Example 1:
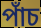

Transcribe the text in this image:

পাঁচ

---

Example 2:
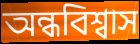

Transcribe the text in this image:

অন্ধবিশ্বাস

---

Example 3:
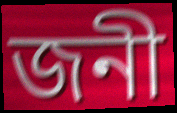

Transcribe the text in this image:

জনী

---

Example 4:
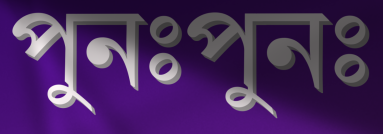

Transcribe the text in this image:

পুনঃপুনঃ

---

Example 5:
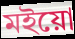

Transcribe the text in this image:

মইয়ো